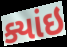
ક્યાંઇ